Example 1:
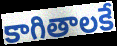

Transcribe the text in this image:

కాగితాలకే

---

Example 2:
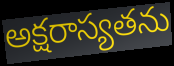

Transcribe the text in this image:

అక్షరాస్యతను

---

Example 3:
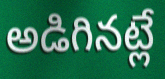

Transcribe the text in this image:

అడిగినట్లే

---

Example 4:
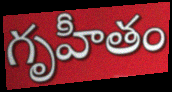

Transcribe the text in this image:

గృహీతం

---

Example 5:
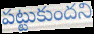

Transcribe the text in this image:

పట్టుకుందని